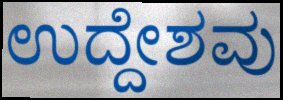
ಉದ್ದೇಶವು